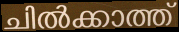
ചിൽക്കാത്ത്